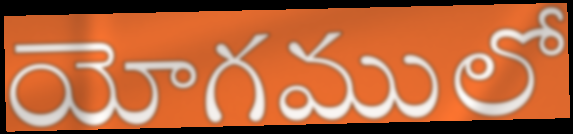
యోగములో